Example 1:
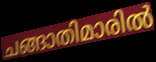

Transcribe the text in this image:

ചങ്ങാതിമാരിൽ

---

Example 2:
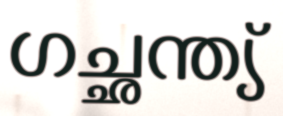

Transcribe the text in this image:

ഗച്ഛന്ത്യ്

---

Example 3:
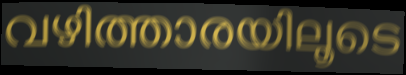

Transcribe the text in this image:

വഴിത്താരയിലൂടെ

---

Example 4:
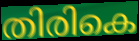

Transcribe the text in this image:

തിരികെ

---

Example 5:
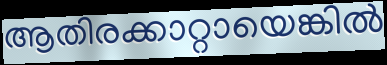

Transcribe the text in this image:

ആതിരക്കാറ്റായെങ്കിൽ